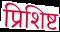
प्रिशिष्ट